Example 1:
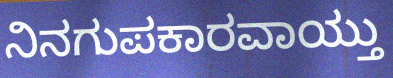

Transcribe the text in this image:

ನಿನಗುಪಕಾರವಾಯ್ತು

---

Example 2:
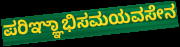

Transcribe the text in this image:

ಪರಿಞ್ಞಾಭಿಸಮಯವಸೇನ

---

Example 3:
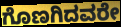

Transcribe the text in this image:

ಗೊಣಗಿದವರೇ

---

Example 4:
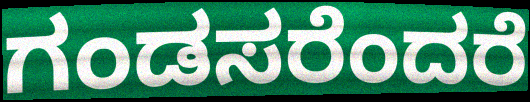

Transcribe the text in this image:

ಗಂಡಸರೆಂದರೆ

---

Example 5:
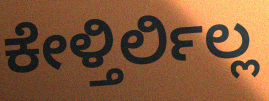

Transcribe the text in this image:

ಕೇಳ್ತಿರ್ಲಿಲ್ಲ